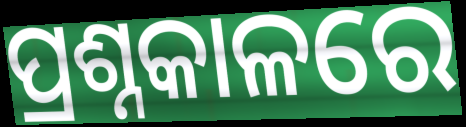
ପ୍ରଶ୍ନକାଳରେ